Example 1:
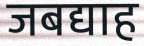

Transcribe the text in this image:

जबद्याह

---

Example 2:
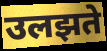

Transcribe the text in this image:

उलझते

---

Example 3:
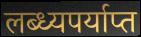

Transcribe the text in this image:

लब्ध्यपर्याप्त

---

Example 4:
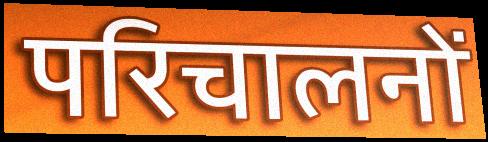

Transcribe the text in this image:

परिचालनों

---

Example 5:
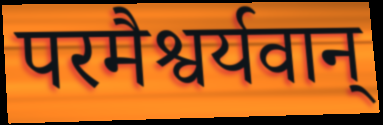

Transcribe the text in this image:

परमैश्वर्यवान्